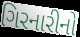
ગિરનારીનો